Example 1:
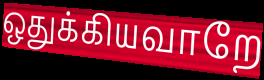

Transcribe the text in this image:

ஒதுக்கியவாறே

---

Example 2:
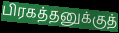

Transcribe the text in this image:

பிரகத்தனுக்குத்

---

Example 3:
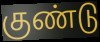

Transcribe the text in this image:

குண்டு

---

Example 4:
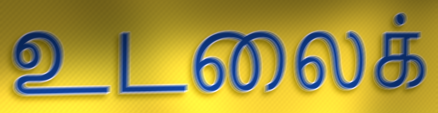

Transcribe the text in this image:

உடலைக்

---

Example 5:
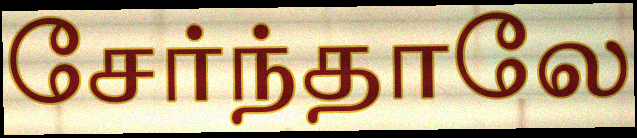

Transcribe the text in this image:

சேர்ந்தாலே